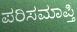
ಪರಿಸಮಾಪ್ತಿ